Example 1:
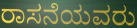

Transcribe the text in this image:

ರಾಸನೆಯವರು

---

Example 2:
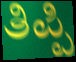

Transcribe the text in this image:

ತಿಪ್ಪಿ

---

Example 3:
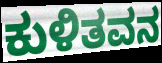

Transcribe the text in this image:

ಕುಳಿತವನ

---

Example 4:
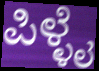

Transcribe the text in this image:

ಪಿಳ್ಳೈ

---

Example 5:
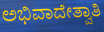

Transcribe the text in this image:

ಅಭಿವಾದೇತ್ವಾತಿ